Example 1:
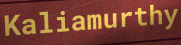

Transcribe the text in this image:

Kaliamurthy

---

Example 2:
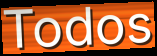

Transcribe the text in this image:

Todos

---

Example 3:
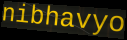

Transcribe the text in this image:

nibhavyo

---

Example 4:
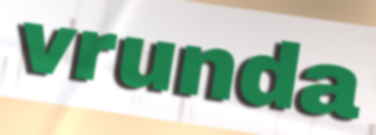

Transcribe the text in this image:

vrunda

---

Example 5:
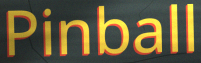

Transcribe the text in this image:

Pinball